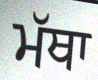
ਮੱਥਾ